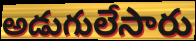
అడుగులేసారు